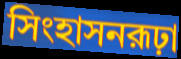
সিংহাসনরূঢ়া